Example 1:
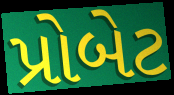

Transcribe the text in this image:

પ્રોબેટ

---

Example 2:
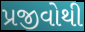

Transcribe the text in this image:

પ્રજીવોથી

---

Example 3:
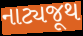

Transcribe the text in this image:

નાટ્યજૂથ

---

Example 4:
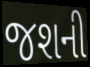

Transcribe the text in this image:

જશની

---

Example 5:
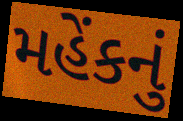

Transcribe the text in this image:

મહેંકનું